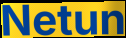
Netun